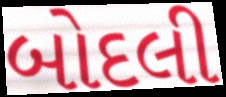
બોદલી